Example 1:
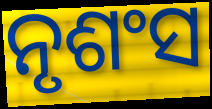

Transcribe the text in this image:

ନୃଶଂସ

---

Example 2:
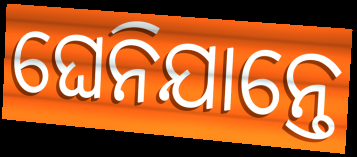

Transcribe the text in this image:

ଘେନିଯାନ୍ତେ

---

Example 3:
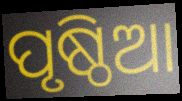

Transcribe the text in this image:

ପୃଷ୍ଠିଆ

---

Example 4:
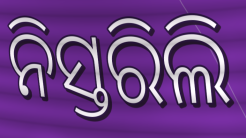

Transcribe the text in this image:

ନିସ୍ତରିଲି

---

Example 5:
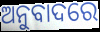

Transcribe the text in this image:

ଅନୁବାଦରେ